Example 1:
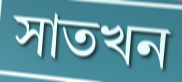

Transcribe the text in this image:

সাতখন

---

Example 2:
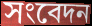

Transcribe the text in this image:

সংবেদন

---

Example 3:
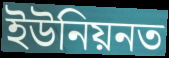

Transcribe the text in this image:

ইউনিয়নত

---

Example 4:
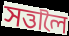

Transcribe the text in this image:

সত্তালৈ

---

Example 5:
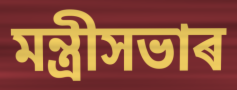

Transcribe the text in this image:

মন্ত্ৰীসভাৰ